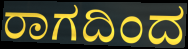
ರಾಗದಿಂದ